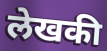
लेखकी